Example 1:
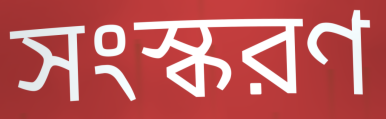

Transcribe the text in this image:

সংস্করণ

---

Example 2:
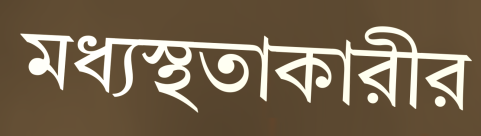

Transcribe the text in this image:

মধ্যস্থতাকারীর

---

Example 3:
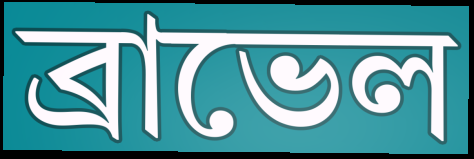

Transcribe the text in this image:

ব্রাভেল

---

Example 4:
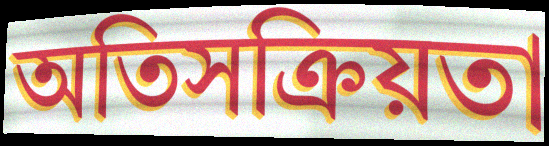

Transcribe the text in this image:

অতিসক্রিয়তা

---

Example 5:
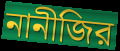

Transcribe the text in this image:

নানীজির